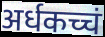
अर्धकच्चं